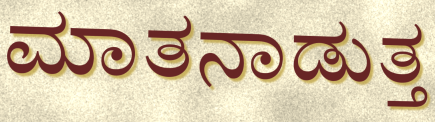
ಮಾತನಾಡುತ್ತ